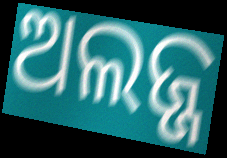
ଅଲଜ୍ଜ